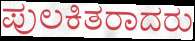
ಪುಲಕಿತರಾದರು